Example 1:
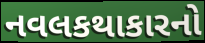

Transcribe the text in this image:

નવલકથાકારનો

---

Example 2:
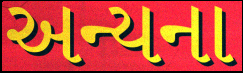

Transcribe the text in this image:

અન્યના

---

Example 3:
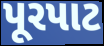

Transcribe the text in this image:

પૂરપાટ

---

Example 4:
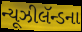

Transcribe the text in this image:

ન્યૂઝીલૅન્ડના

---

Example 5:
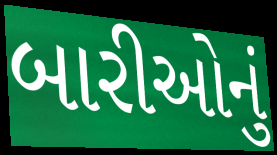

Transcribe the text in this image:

બારીઓનું